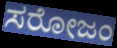
ಸರೋಜಂ